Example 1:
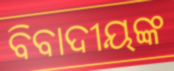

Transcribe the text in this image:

ବିବାଦୀୟଙ୍କ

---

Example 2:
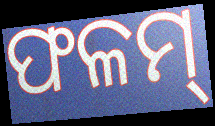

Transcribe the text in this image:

ଫଳମ୍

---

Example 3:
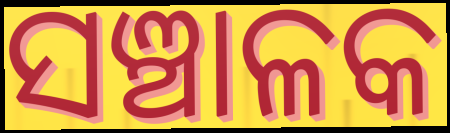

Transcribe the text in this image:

ସଞ୍ଚାଳକ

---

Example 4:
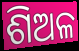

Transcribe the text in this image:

ଶିଅଳ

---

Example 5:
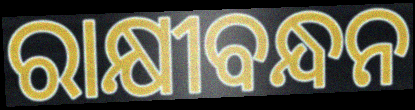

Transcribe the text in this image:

ରାକ୍ଷୀବନ୍ଧନ